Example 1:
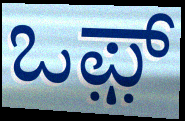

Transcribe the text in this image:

ಒಫ಼್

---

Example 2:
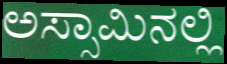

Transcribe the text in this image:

ಅಸ್ಸಾಮಿನಲ್ಲಿ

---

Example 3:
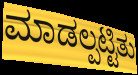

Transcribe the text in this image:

ಮಾಡಲ್ಪಟ್ಟಿತು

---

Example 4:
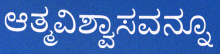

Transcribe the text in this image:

ಆತ್ಮವಿಶ್ವಾಸವನ್ನೂ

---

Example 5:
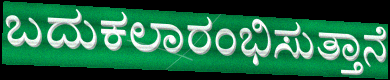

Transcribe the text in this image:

ಬದುಕಲಾರಂಭಿಸುತ್ತಾನೆ